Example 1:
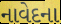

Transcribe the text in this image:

નાવેદના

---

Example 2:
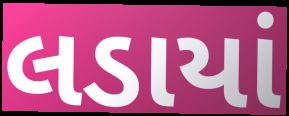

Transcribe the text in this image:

લડાયાં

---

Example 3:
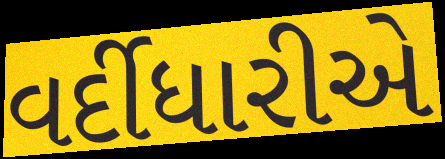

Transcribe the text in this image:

વર્દીધારીએ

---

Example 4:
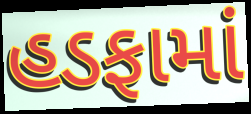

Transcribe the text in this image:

હડફામાં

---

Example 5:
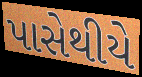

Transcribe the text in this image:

પાસેથીયે